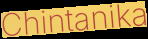
Chintanika